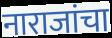
नाराजांचा